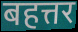
बहत्तर